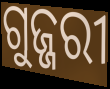
ଗୁଜ୍ଜରୀ